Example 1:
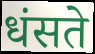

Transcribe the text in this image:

धंसते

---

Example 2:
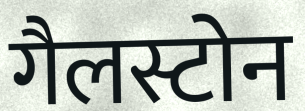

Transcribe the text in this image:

गैलस्टोन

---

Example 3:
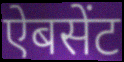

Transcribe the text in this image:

ऐबसेंट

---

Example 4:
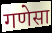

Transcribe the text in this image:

गणेसा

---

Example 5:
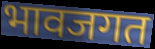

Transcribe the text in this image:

भावजगत